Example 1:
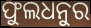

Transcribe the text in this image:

ଫୁଲଧନୁର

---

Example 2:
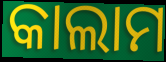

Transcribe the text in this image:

କାଲାମ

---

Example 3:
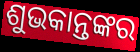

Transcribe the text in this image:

ଶୁଭକାନ୍ତଙ୍କର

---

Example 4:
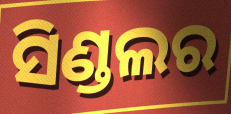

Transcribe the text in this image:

ସିଣ୍ଡଲର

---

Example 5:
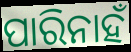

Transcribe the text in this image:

ପାରିନାହଁ